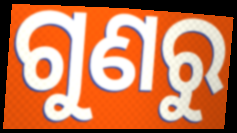
ଗୁଣରୁ